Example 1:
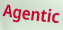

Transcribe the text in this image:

Agentic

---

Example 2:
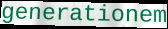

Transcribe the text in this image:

generationem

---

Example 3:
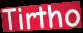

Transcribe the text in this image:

Tirtho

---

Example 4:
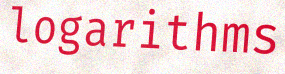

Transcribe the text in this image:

logarithms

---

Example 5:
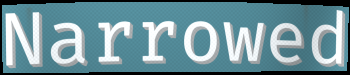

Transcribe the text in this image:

Narrowed